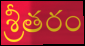
శ్రీతరం